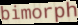
bimorph